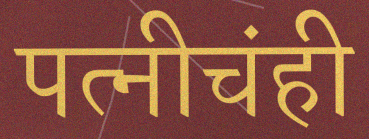
पत्नीचंही